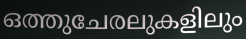
ഒത്തുചേരലുകളിലും